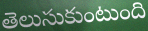
తెలుసుకుంటుంది